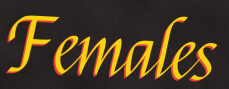
Females